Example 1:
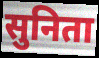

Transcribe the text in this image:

सुनिता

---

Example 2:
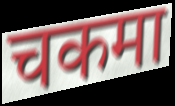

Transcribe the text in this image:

चकमा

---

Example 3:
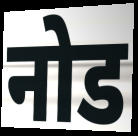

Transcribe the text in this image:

नोड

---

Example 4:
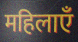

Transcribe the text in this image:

महिलाएँ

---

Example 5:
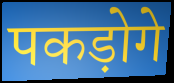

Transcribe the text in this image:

पकड़ोगे